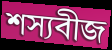
শস্যবীজ